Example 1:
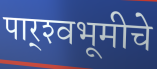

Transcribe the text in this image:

पार्श्वभूमीचे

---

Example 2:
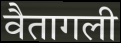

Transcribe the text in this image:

वैतागली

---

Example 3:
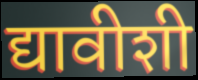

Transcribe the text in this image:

द्यावीशी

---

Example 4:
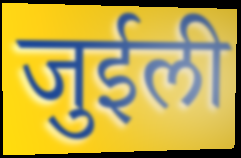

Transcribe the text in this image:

जुईली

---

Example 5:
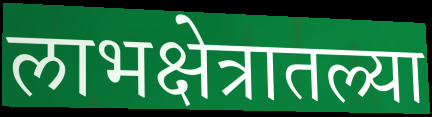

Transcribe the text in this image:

लाभक्षेत्रातल्या